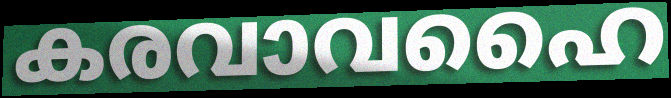
കരവാവഹൈ